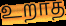
உறாத